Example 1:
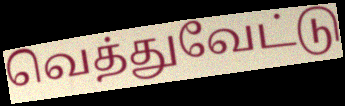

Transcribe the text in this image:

வெத்துவேட்டு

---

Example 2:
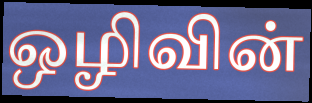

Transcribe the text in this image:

ஒழிவின்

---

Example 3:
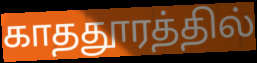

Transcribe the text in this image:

காததூரத்தில்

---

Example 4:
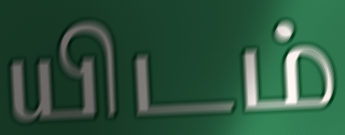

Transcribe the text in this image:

யிடம்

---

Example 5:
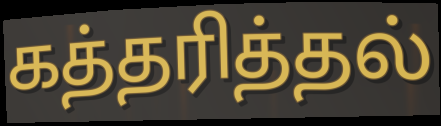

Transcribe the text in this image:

கத்தரித்தல்